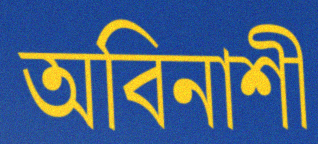
অবিনাশী